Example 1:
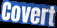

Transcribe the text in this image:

Covert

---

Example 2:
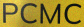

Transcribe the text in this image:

PCMC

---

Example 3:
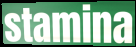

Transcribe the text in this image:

stamina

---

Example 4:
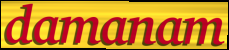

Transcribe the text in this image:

damanam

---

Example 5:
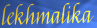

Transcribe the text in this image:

lekhmalika